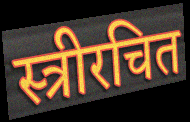
स्त्रीरचित